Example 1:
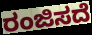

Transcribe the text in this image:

ರಂಜಿಸದೆ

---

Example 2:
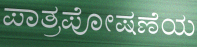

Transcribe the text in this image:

ಪಾತ್ರಪೋಷಣೆಯ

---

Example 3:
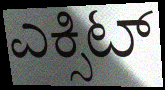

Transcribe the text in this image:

ಎಕ್ಸಿಟ್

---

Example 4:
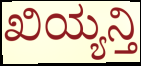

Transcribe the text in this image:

ಖಿಯ್ಯನ್ತಿ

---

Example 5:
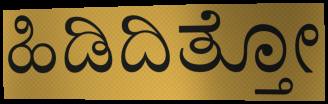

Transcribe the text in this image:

ಹಿಡಿದಿತ್ತೋ